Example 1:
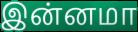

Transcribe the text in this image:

இன்னமா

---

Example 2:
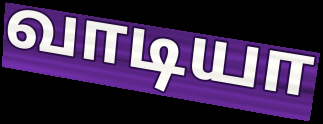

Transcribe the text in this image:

வாடியா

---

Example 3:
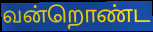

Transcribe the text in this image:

வன்றொண்ட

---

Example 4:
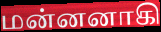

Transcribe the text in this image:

மன்னனாகி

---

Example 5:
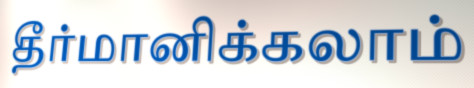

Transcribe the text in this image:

தீர்மானிக்கலாம்